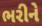
ભરીને